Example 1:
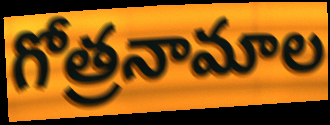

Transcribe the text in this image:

గోత్రనామాల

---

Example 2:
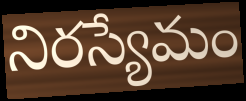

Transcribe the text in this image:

నిరస్యేమం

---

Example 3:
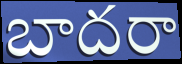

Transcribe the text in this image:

బాదరా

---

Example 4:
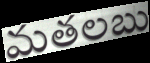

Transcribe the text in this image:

మతలబు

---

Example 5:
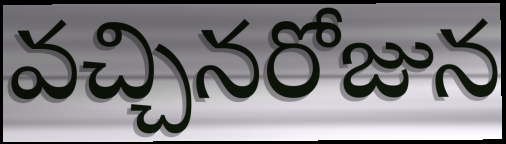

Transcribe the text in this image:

వచ్చినరోజున